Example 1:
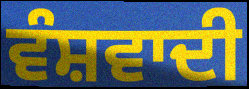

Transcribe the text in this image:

ਵੰਸ਼ਵਾਦੀ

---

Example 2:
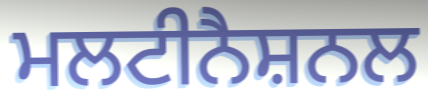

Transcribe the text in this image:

ਮਲਟੀਨੈਸ਼ਨਲ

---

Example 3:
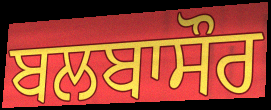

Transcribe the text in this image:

ਬਲਬਾਸੌਰ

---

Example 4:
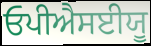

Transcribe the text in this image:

ਓਪੀਐਸਈਯੂ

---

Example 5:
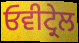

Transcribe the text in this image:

ਓਵੀਟ੍ਰੇਲ